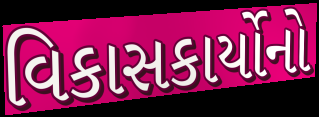
વિકાસકાર્યોનો